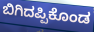
ಬಿಗಿದಪ್ಪಿಕೊಂಡ